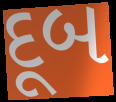
દૂબ